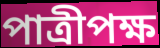
পাত্রীপক্ষ